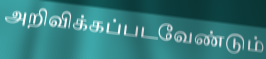
அறிவிக்கப்படவேண்டும்